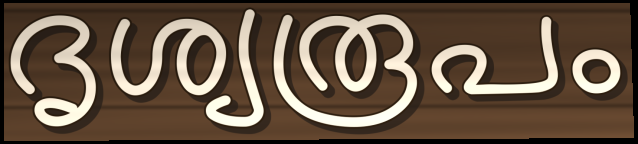
ദൃശ്യരൂപം